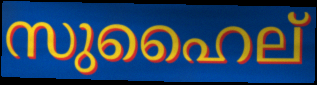
സുഹൈല്